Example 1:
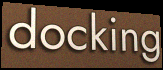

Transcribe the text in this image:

docking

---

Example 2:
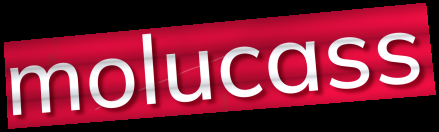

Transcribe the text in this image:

molucass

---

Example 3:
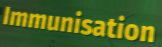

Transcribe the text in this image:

Immunisation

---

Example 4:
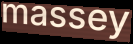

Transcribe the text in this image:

massey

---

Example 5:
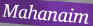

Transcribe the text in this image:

Mahanaim